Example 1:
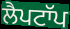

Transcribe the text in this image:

ਲੈਪਟਾੱਪ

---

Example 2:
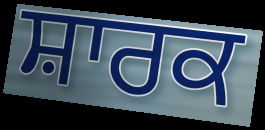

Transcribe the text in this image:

ਸ਼ਾਰਕ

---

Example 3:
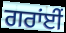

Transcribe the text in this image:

ਗਰਾਂਈਂ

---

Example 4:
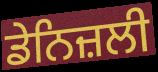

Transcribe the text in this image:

ਡੇਨਿਜ਼ਲੀ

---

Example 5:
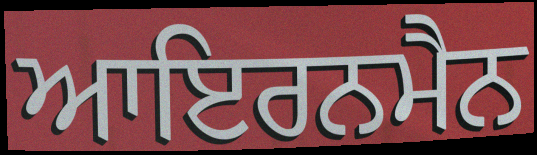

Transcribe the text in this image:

ਆਇਰਨਮੈਨ